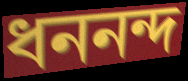
ধননন্দ